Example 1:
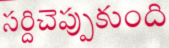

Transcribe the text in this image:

సర్దిచెప్పుకుంది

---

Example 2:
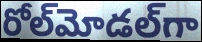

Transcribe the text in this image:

రోల్‌మోడల్‌గా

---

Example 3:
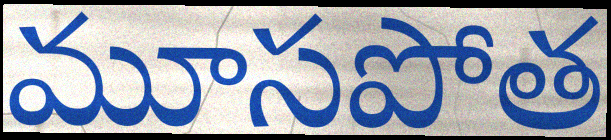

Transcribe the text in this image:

మూసపోత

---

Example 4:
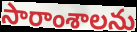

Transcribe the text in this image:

సారాంశాలను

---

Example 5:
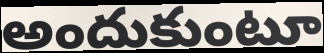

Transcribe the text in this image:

అందుకుంటూ